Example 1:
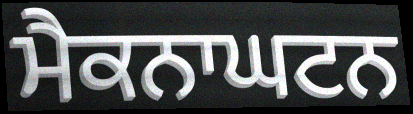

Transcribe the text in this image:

ਮੈਕਨਾਘਟਨ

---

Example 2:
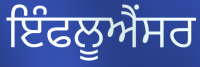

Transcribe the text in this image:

ਇੰਫਲੂਐਂਸਰ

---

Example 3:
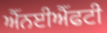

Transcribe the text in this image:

ਐੱਨਈਐੱਫਟੀ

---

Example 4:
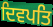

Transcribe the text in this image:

ਦਿਵਪਤਿ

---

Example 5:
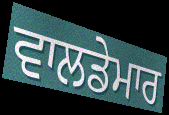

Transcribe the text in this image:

ਵਾਲਡੇਮਾਰ